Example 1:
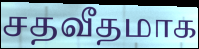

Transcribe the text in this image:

சதவீதமாக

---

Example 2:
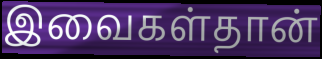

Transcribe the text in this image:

இவைகள்தான்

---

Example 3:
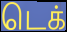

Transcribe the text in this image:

டெக்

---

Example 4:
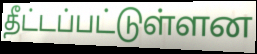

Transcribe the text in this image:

தீட்டப்பட்டுள்ளன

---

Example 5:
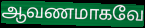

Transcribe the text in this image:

ஆவணமாகவே